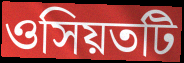
ওসিয়তটি